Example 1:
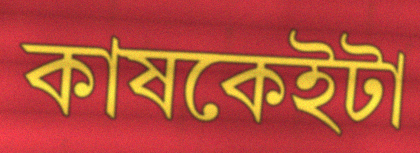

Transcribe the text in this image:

কাষকেইটা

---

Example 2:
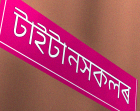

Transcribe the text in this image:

টাইটানসকলৰ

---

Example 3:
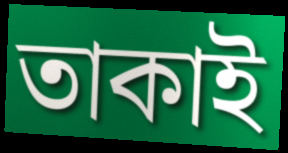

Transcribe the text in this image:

তাকাই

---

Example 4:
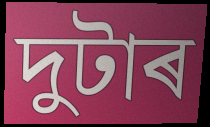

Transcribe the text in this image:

দুটাৰ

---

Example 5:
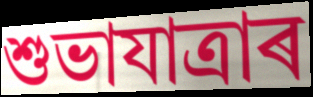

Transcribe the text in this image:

শুভাযাত্ৰাৰ